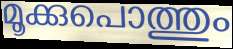
മൂക്കുപൊത്തും